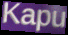
Kapu